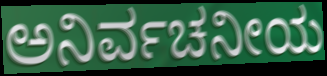
ಅನಿರ್ವಚನೀಯ